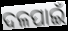
ଦଳପାଇଁ